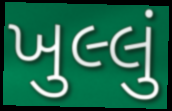
ખુલ્લું